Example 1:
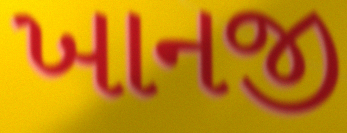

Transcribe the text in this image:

ખાનજી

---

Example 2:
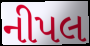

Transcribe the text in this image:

નીપલ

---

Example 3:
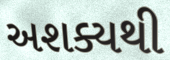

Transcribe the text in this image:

અશક્યથી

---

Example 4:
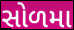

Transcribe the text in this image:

સોળમા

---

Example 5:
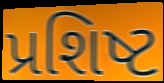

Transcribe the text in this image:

પ્રશિષ્ટ